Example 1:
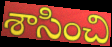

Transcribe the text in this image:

శాసించి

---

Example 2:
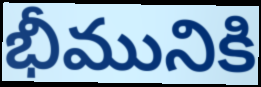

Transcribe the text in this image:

భీమునికి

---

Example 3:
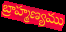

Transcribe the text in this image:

బ్రాహ్మణ్యము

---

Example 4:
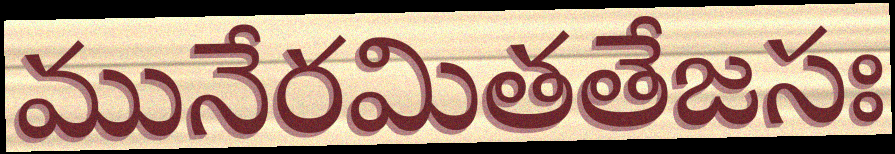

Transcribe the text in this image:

మునేరమితతేజసః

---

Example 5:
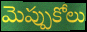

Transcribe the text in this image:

మెప్పుకోలు